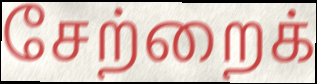
சேற்றைக்